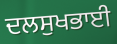
ਦਲਸੁਖਭਾਈ